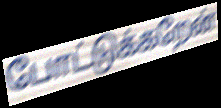
போட்டுக்கறேன்